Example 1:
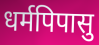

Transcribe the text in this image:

धर्मपिपासु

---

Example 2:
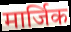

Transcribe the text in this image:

मार्जिक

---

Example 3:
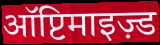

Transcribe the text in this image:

ऑप्टिमाइज़्ड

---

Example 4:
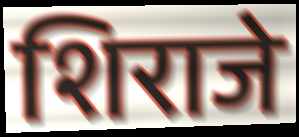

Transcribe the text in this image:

शिराजे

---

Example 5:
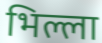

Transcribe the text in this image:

भिल्ला